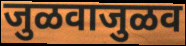
जुळवाजुळव